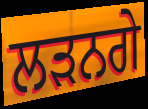
ਲੜਨਗੇ